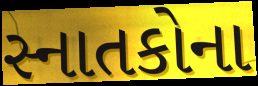
સ્નાતકોના